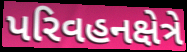
પરિવહનક્ષેત્રે